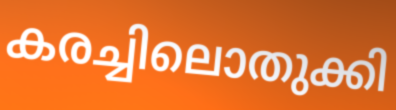
കരച്ചിലൊതുക്കി